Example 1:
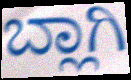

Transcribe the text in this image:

ಬ್ಲಾಗಿ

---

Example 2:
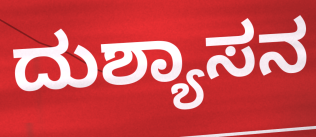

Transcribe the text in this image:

ದುಶ್ಯಾಸನ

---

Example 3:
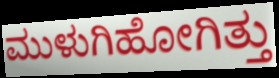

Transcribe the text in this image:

ಮುಳುಗಿಹೋಗಿತ್ತು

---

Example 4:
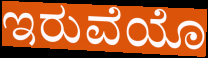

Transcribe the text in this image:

ಇರುವೆಯೊ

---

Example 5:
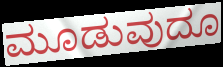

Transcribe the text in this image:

ಮೂಡುವುದೂ